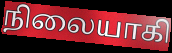
நிலையாகி